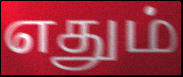
எதும்